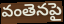
వంతెనపై